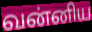
வன்னிய